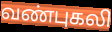
வண்புகலி